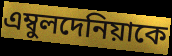
এম্বুলদেনিয়াকে